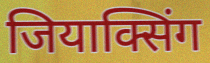
जियाक्सिंग